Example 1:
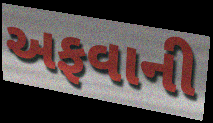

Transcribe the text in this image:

અફવાની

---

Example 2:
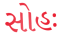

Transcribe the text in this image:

સોહઃ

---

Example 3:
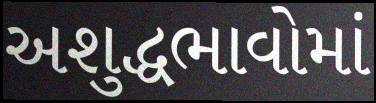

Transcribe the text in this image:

અશુદ્ધભાવોમાં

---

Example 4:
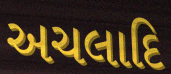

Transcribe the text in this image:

અચલાદિ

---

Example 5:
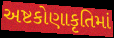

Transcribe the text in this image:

અષ્ટકોણાકૃતિમાં